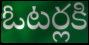
ఓటర్లకి